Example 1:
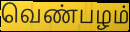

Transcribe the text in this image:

வெண்பழம்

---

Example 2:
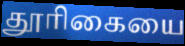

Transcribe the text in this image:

தூரிகையை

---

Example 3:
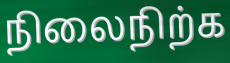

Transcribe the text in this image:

நிலைநிற்க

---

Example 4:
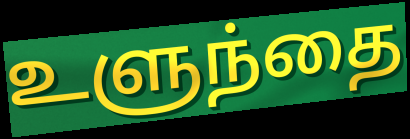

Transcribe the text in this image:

உளுந்தை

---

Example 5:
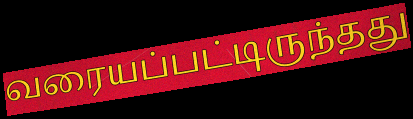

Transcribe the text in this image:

வரையப்பட்டிருந்தது